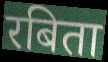
रबिता